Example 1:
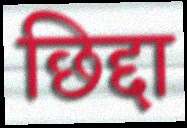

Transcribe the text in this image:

छिद्दा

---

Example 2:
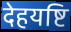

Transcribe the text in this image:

देहयष्टि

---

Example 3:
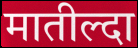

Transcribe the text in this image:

मातील्‍दा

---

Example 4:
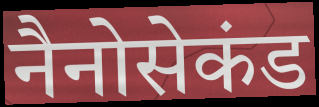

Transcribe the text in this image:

नैनोसेकंड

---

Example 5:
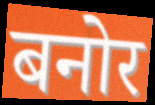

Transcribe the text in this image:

बनोर